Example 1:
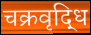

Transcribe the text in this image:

चक्रवृद्धि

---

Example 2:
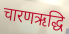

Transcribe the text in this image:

चारणऋद्धि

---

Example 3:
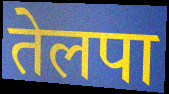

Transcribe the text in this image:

तेलपा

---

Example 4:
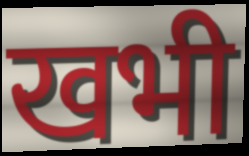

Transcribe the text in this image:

खभी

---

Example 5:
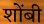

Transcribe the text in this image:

शोंबी